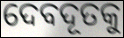
ଦେବଦୂତକୁ